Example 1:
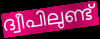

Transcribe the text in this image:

ദ്വീപിലുണ്ട്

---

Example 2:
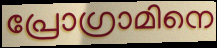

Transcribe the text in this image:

പ്രോഗ്രാമിനെ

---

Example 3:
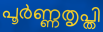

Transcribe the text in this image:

പൂർണ്ണതൃപ്തി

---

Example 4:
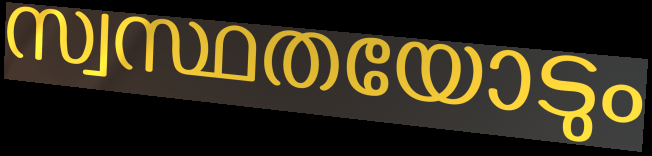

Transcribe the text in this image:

സ്വസ്ഥതയോടും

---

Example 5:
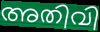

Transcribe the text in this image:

അതിവി